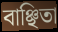
বাঞ্ছিতা